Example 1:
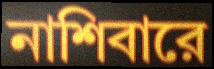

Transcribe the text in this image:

নাশিবারে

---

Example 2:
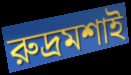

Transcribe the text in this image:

রুদ্রমশাই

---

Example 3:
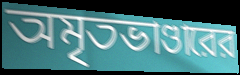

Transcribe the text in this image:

অমৃতভাণ্ডারের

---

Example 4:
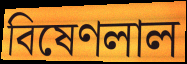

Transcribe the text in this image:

বিষেণলাল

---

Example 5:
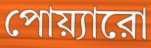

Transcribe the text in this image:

পোয়্যারো